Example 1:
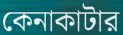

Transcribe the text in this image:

কেনাকাটার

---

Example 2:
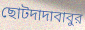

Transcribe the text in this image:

ছোটদাদাবাবুর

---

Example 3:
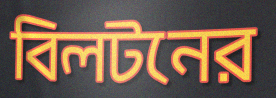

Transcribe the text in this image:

বিলটনের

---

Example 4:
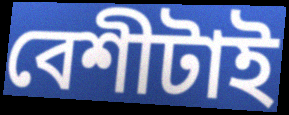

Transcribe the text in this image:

বেশীটাই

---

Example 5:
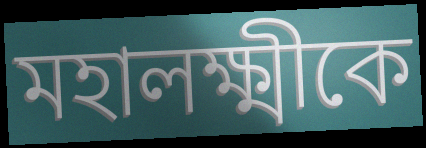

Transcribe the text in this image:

মহালক্ষ্মীকে